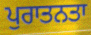
ਪੁਰਾਤਨਤਾ